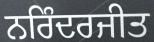
ਨਰਿੰਦਰਜੀਤ